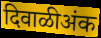
दिवाळीअंक